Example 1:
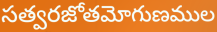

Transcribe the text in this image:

సత్వరజోతమోగుణముల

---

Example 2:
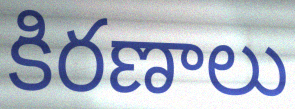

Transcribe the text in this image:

కిరణాలు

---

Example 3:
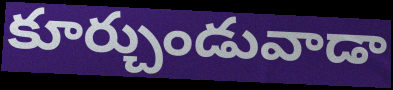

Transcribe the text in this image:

కూర్చుండువాడా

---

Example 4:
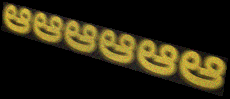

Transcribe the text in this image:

ఆఆఆఆఆఆ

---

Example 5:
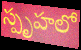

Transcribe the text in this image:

స్పృహలో